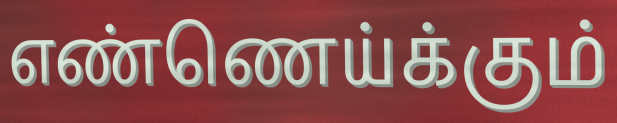
எண்ணெய்க்கும்